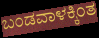
ಬಂಡವಾಳಕ್ಕಿಂತ